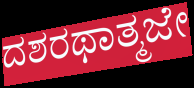
ದಶರಥಾತ್ಮಜೇ